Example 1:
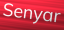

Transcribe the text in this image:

Senyar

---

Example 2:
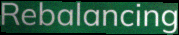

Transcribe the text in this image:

Rebalancing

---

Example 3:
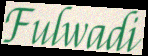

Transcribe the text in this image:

Fulwadi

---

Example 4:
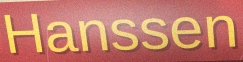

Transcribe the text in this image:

Hanssen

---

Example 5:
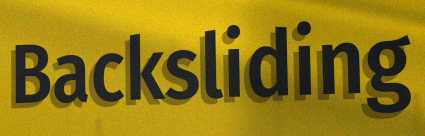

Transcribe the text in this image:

Backsliding